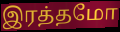
இரத்தமோ